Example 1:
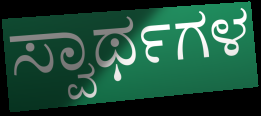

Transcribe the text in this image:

ಸ್ವಾರ್ಥಗಳ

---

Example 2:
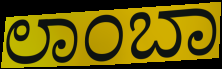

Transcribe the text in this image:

ಲಾಂಬಾ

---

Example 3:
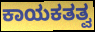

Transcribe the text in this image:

ಕಾಯಕತತ್ವ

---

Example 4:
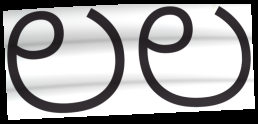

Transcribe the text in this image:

ಲಲ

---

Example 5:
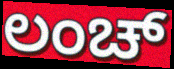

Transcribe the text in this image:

ಲಂಚ್